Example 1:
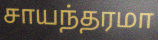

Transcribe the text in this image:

சாயந்தரமா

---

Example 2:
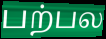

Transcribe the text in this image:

பற்பல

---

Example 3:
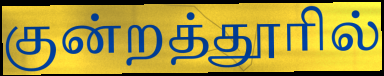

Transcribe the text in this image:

குன்றத்தூரில்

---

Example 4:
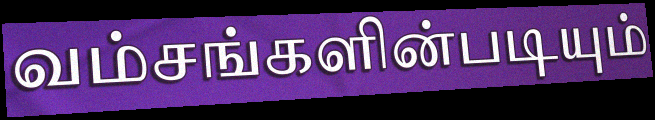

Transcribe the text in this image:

வம்சங்களின்படியும்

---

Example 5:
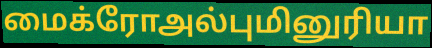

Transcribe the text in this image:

மைக்ரோஅல்புமினுரியா